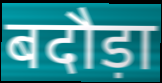
बदौड़ा